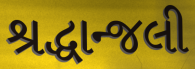
શ્રદ્ધાન્જલી